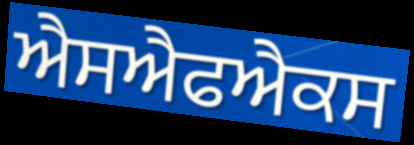
ਐਸਐਫਐਕਸ